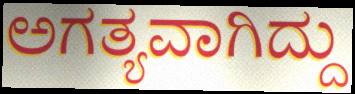
ಅಗತ್ಯವಾಗಿದ್ದು